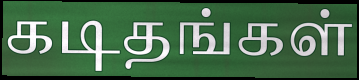
கடிதங்கள்